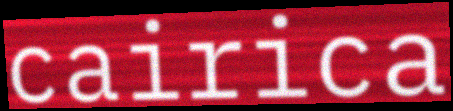
cairica